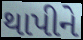
થાપીને